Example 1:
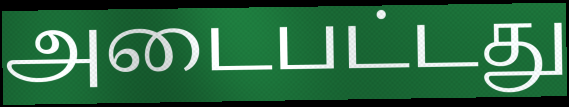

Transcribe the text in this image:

அடைபட்டது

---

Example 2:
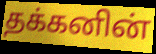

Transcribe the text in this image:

தக்கனின்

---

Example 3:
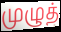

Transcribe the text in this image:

முழுத்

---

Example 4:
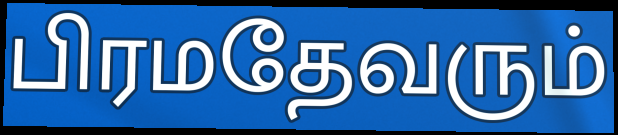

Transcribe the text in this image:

பிரமதேவரும்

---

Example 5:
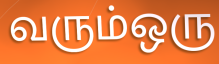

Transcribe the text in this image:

வரும்ஒரு